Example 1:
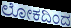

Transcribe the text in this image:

ಲೋಕದಿಂದ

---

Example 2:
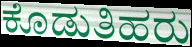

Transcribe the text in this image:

ಕೊಡುತಿಹರು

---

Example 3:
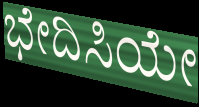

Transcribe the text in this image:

ಭೇದಿಸಿಯೇ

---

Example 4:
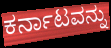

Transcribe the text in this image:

ಕರ್ನಾಟವನ್ನು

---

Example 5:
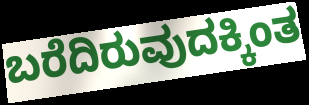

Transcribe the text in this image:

ಬರೆದಿರುವುದಕ್ಕಿಂತ